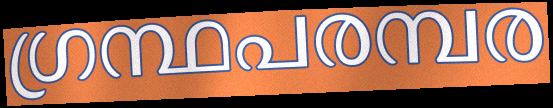
ഗ്രന്ഥപരമ്പര